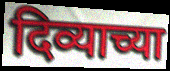
दिव्याच्या